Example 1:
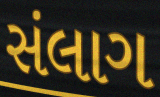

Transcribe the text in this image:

સંલાગ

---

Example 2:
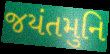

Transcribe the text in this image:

જયંતમુનિ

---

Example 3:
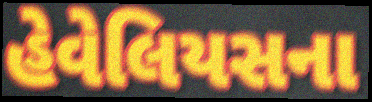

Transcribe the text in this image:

હેવેલિયસના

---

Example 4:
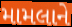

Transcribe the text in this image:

મામલાને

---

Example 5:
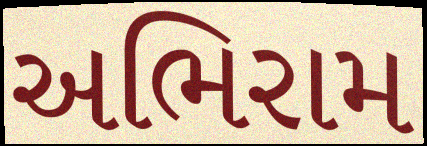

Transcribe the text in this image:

અભિરામ